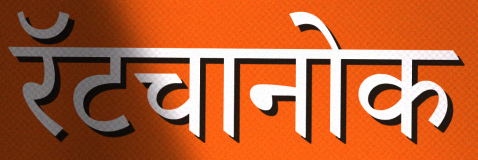
रॅटचानोक